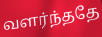
வளர்ந்ததே